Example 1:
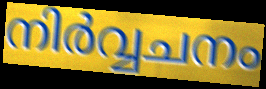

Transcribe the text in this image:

നിർവ്വചനം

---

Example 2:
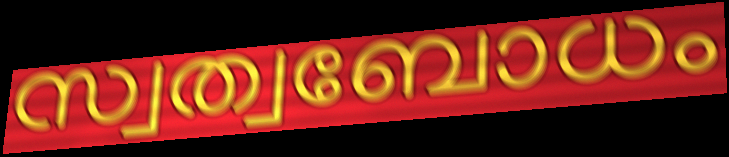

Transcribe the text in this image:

സ്വത്വബോധം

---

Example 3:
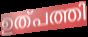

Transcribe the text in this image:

ഉത്പത്തി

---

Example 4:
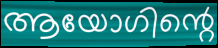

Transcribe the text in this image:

ആയോഗിന്റെ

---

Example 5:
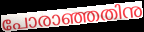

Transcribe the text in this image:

പോരാഞ്ഞതിനു